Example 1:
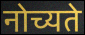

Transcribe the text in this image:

नोच्यते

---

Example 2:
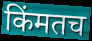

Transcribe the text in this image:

किंमतच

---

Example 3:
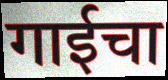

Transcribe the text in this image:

गाईचा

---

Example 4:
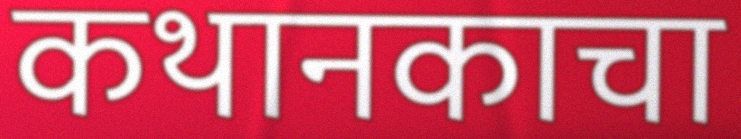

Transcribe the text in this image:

कथानकाचा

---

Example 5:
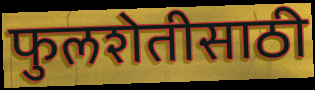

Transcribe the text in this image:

फुलशेतीसाठी